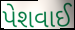
પેશવાઈ